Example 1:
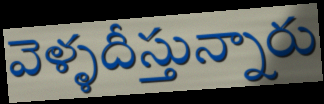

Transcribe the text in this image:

వెళ్ళదీస్తున్నారు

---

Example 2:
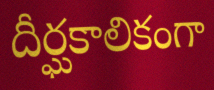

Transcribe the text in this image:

దీర్ఘకాలికంగా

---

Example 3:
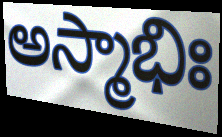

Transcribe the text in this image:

అస్మాభిః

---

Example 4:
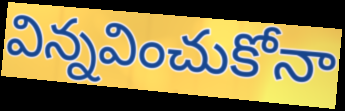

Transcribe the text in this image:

విన్నవించుకోనా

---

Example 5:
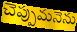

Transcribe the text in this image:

చెప్పుమనెను